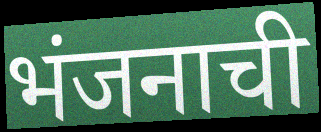
भंजनाची